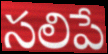
సలిపే